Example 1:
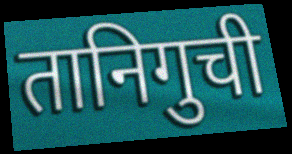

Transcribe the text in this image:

तानिगुची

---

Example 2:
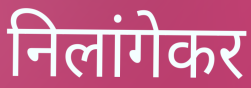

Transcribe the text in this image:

निलांगेकर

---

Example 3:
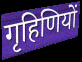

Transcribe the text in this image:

गृहिणियों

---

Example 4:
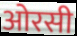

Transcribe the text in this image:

ओरसी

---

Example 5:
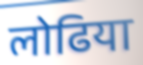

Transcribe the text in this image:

लोढिया